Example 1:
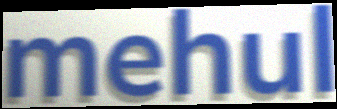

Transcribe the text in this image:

mehul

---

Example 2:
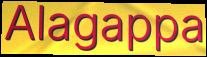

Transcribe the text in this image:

Alagappa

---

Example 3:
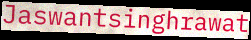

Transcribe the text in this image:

Jaswantsinghrawat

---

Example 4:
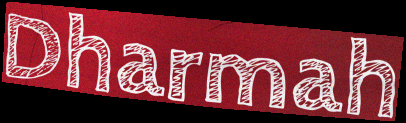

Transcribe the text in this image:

Dharmah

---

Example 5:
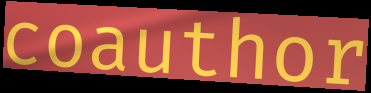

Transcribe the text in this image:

coauthor